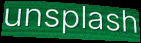
unsplash